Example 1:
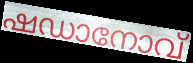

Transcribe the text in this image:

ഷഡാനോവ്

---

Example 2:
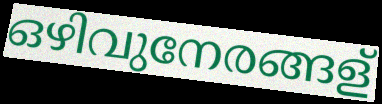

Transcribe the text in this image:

ഒഴിവുനേരങ്ങള്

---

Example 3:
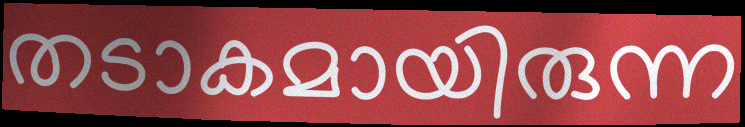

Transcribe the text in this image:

തടാകമായിരുന്ന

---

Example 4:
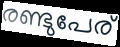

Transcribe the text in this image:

രണ്ടുപേര്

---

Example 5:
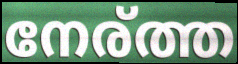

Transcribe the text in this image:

നേര്ത്ത